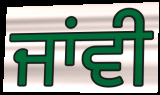
ਜਾਂਵੀ